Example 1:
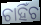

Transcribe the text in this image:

ଚାହିଁଚ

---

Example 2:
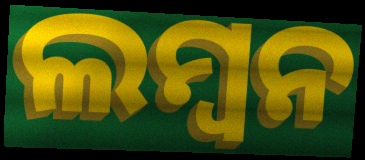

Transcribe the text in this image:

ଲମ୍ବନ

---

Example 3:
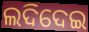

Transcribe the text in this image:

ଲଦିଦେଇ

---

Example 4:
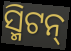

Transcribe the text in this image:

ସ୍ମିଟନ୍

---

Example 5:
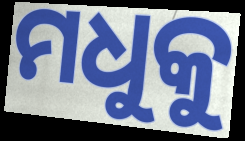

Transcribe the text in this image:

ମଧୁକୁ